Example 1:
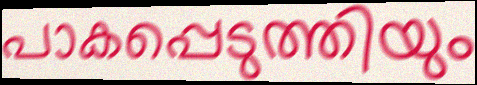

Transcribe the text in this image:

പാകപ്പെടുത്തിയും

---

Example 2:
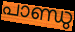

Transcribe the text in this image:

പാണ്ഡു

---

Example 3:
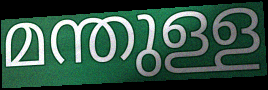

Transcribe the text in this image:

മന്തുള്ള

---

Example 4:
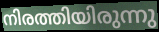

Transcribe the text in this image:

നിരത്തിയിരുന്നു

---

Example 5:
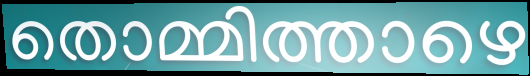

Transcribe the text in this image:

തൊമ്മിത്താഴെ